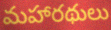
మహారథులు